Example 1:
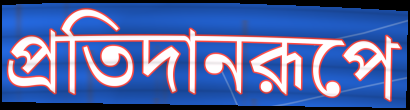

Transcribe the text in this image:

প্রতিদানরূপে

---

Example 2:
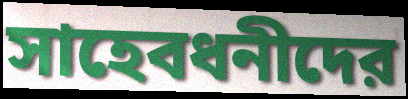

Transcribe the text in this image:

সাহেবধনীদের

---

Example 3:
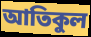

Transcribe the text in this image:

আতিকুল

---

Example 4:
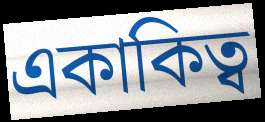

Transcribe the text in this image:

একাকিত্ব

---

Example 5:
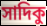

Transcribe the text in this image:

সাদিকু